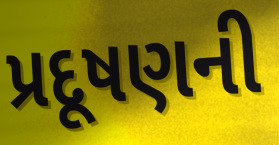
પ્રદૂષણની